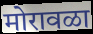
मोरावळा